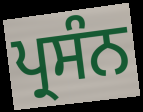
ਪ੍ਰਸੰਨ